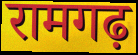
रामगढ़